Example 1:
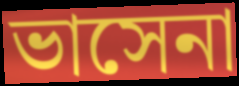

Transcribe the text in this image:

ভাসেনা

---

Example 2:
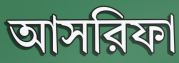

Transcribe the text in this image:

আসরিফা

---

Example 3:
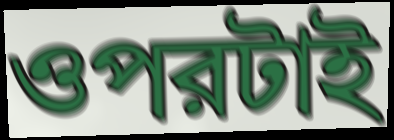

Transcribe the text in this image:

ওপরটাই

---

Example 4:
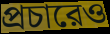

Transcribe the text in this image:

প্রচারেও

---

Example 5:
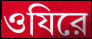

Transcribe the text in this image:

ওযিরে